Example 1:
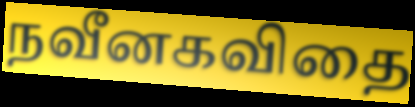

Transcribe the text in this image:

நவீனகவிதை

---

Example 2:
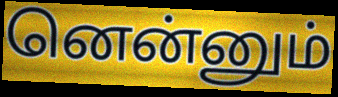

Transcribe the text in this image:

னென்னும்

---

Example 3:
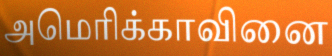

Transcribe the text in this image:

அமெரிக்காவினை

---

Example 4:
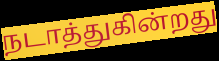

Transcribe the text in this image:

நடாத்துகின்றது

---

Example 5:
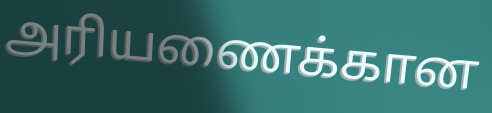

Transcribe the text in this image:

அரியணைக்கான